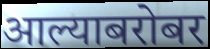
आल्याबरोबर